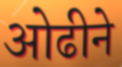
ओढीने